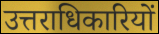
उत्तराधिकारियों